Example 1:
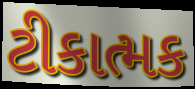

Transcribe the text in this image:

ટીકાત્મક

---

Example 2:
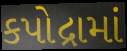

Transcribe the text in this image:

કપોદ્રામાં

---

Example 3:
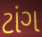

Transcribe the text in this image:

ટાંગ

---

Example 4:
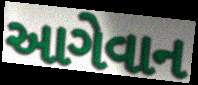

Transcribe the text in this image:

આગેવાન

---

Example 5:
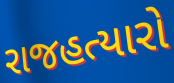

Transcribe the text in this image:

રાજહત્યારો